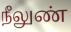
நீலுண்